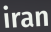
iran